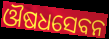
ଔଷଧସେବନ